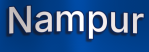
Nampur